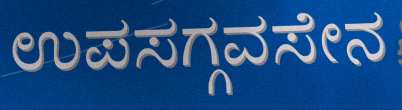
ಉಪಸಗ್ಗವಸೇನ